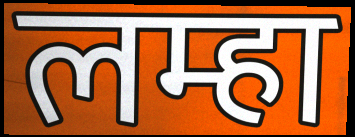
लम्हा